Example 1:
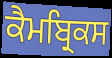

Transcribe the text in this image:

ਕੈਮਬ੍ਰਿਕਸ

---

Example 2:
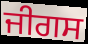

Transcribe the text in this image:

ਜੀਗਸ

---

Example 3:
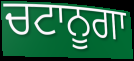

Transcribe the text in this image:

ਚਟਾਨੂਗਾ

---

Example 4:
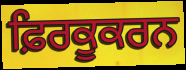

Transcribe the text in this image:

ਫ਼ਿਰਕੂਕਰਨ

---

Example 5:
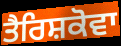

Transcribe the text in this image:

ਤੈਰਿਸ਼ਕੋਵਾ